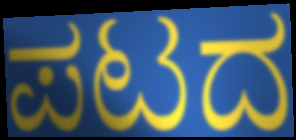
ಪಟದ